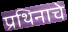
प्रथिनाचे